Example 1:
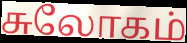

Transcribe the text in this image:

சுலோகம்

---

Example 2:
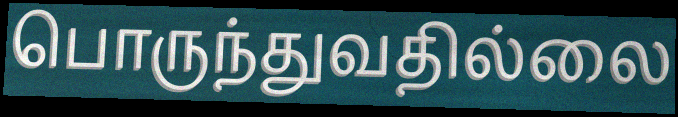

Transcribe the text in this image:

பொருந்துவதில்லை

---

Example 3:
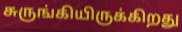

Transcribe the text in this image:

சுருங்கியிருக்கிறது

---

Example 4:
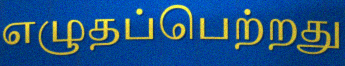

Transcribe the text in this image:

எழுதப்பெற்றது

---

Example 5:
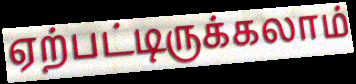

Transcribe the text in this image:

ஏற்பட்டிருக்கலாம்